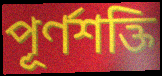
পূর্ণশক্তি